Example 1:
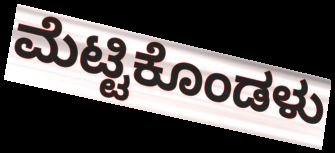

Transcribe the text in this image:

ಮೆಟ್ಟಿಕೊಂಡಳು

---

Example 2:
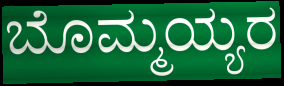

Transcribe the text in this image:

ಬೊಮ್ಮಯ್ಯರ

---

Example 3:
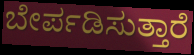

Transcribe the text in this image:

ಬೇರ್ಪಡಿಸುತ್ತಾರೆ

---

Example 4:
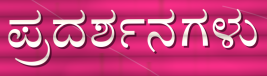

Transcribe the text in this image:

ಪ್ರದರ್ಶನಗಳು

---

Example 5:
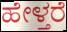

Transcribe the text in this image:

ಹೇಳ್ತರೆ